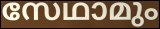
സേഥാമും